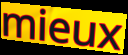
mieux